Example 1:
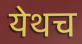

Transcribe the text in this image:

येथच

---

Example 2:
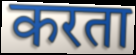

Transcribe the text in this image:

करता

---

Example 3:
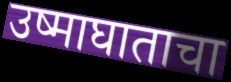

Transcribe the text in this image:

उष्माघाताचा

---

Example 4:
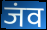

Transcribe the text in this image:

जंव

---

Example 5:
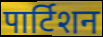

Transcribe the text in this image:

पार्टिशन